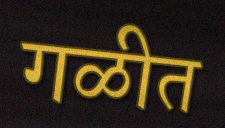
गळीत